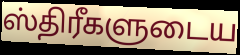
ஸ்திரீகளுடைய